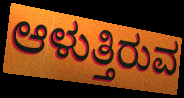
ಆಳುತ್ತಿರುವ